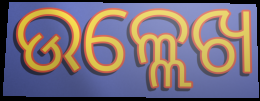
ଉଳ୍ଲେଖ